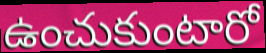
ఉంచుకుంటారో